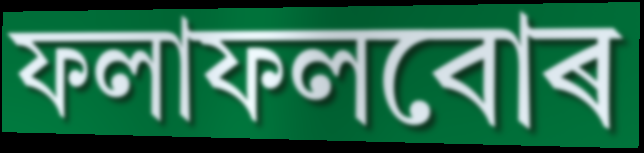
ফলাফলবোৰ